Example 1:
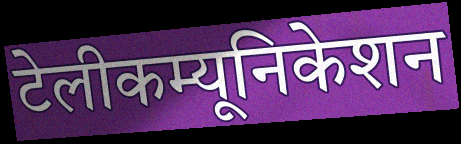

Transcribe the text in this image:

टेलीकम्यूनिकेशन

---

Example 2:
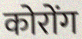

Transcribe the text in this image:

कोरोंग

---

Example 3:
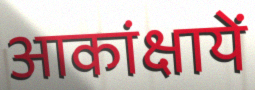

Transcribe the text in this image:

आकांक्षायें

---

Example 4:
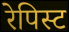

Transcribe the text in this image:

रेपिस्ट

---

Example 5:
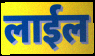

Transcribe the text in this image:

लाईल